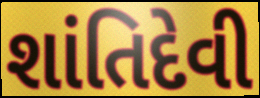
શાંતિદેવી